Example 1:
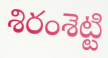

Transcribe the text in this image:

శిరంశెట్టి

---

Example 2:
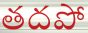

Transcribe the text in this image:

తదపో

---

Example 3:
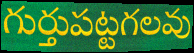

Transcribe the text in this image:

గుర్తుపట్టగలవు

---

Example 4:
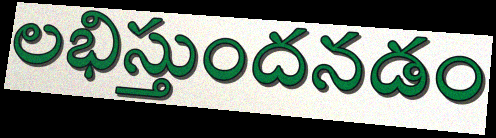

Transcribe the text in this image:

లభిస్తుందనడం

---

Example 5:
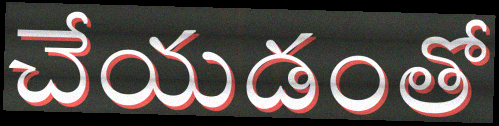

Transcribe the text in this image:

చేయడంతో